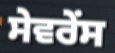
ਸੇਵਰੇਂਸ